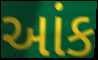
આંક